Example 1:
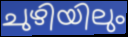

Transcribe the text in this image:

ചുഴിയിലും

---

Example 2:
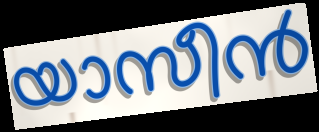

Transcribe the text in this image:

യാസീൻ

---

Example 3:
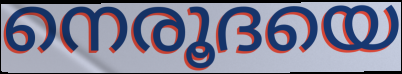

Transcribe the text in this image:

നെരൂദയെ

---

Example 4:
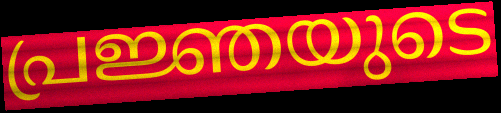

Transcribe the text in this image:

പ്രജ്ഞയുടെ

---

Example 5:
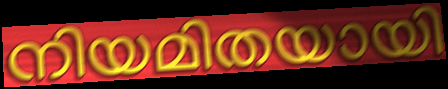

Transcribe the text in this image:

നിയമിതയായി